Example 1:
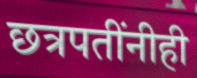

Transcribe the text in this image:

छत्रपतींनीही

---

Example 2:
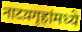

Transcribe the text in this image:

नाटय़गृहांमध्ये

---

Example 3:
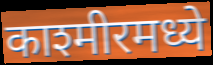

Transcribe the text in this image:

काश्मीरमध्ये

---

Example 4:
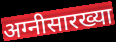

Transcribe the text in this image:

अग्नीसारख्या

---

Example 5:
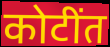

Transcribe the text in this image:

कोटींत